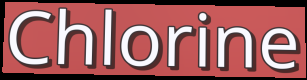
Chlorine